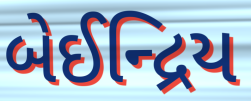
બેઈન્દ્રિય